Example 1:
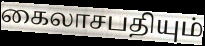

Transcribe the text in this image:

கைலாசபதியும்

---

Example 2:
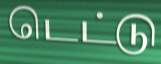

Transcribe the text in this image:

டெட்டு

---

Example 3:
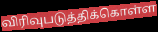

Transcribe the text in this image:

விரிவுபடுத்திக்கொள்ள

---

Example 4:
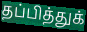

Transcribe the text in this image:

தப்பித்துக்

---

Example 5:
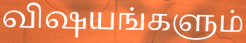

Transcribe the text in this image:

விஷயங்களும்